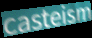
casteism